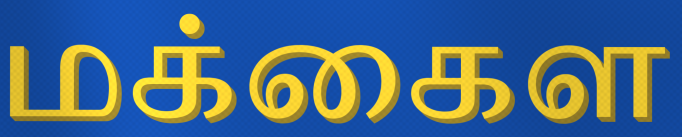
மக்கைள